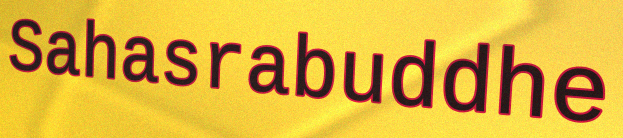
Sahasrabuddhe